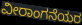
ವೀರಾಂಗನೆಯರ